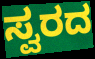
ಸ್ವರದ